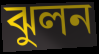
ঝুলন